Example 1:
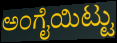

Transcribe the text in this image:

ಅಂಗೈಯಿಟ್ಟು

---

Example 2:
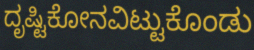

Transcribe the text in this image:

ದೃಷ್ಟಿಕೋನವಿಟ್ಟುಕೊಂಡು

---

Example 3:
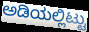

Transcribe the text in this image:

ಅಡಿಯಲ್ಲಿಟ್ಟು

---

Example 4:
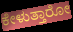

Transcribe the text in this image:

ಕೇಳುತ್ತಾರೋ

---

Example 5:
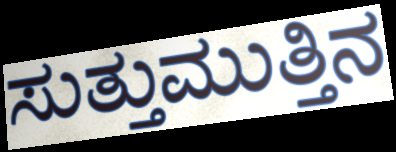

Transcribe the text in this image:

ಸುತ್ತುಮುತ್ತಿನ